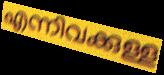
എന്നിവക്കുള്ള